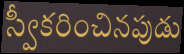
స్వీకరించినపుడు